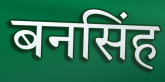
बनसिंह